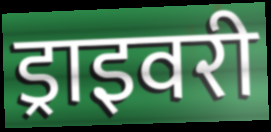
ड्राइवरी